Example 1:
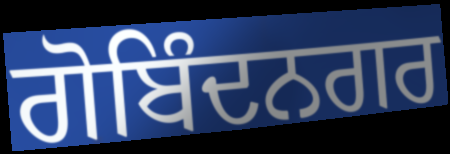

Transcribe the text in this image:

ਗੋਬਿੰਦਨਗਰ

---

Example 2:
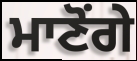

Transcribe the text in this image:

ਮਾਣੋਂਗੇ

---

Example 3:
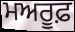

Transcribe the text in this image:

ਮਅਰੂਫ਼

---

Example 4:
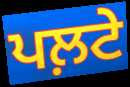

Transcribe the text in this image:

ਪਲ਼ਟੇ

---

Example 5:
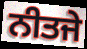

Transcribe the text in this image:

ਨੀਤਜੇ